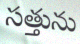
సత్తును